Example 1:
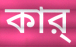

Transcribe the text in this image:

কার্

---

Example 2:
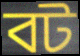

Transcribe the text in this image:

বট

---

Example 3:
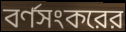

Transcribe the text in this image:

বর্ণসংকরের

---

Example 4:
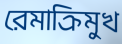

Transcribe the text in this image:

রেমাক্রিমুখ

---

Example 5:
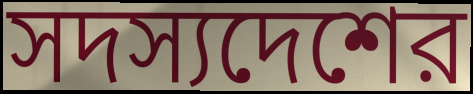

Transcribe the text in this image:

সদস্যদেশের